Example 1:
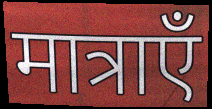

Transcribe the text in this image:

मात्राएँ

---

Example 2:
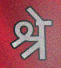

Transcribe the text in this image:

श्रे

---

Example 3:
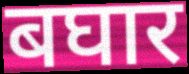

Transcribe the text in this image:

बघार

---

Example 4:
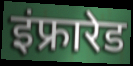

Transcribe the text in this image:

इंफ्रारेड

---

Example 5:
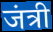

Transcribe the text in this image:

जंत्री